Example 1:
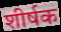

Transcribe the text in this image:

शीर्षक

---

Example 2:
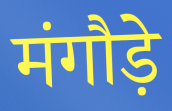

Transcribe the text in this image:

मंगौड़े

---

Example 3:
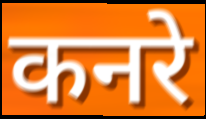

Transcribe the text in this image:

कनरे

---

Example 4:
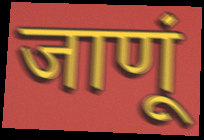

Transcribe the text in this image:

जाणूं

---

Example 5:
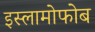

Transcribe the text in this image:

इस्लामोफोब